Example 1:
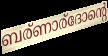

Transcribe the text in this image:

ബര്ണാര്ദോന്റെ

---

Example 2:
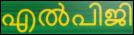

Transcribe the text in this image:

എൽപിജി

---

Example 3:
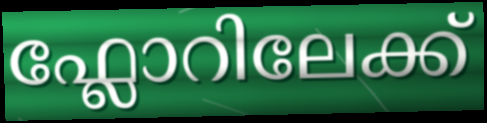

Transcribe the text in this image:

ഫ്ലോറിലേക്ക്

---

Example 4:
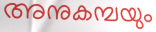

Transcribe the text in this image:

അനുകമ്പയും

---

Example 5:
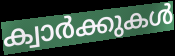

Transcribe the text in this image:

ക്വാർക്കുകൾ